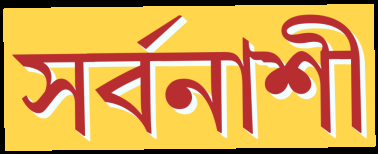
সৰ্বনাশী